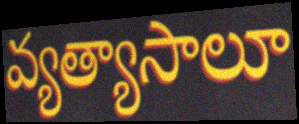
వ్యత్యాసాలూ